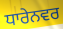
ਧਾਰੇਨਵਰ